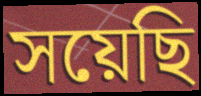
সয়েছি